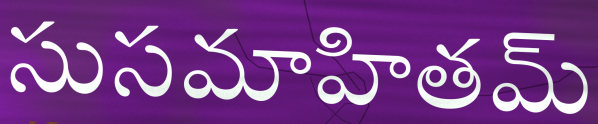
సుసమాహితమ్